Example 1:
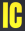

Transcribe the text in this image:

IC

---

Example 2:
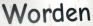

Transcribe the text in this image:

Worden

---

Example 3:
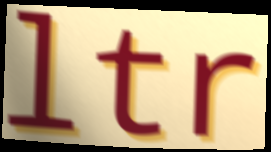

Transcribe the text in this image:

ltr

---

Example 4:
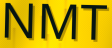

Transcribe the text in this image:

NMT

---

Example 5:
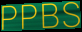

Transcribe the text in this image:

PPBS